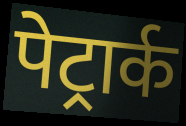
पेट्रार्क